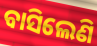
ବାସିଲେଣି